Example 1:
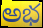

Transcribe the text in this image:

అభ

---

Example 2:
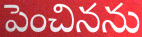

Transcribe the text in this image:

పెంచినను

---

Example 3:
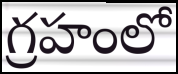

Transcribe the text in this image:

గ్రహంలో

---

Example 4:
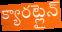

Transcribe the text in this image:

క్యారట్లైన్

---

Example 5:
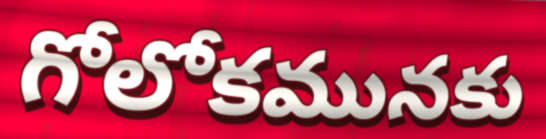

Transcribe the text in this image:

గోలోకమునకు